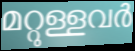
മറ്റുള്ളവർ